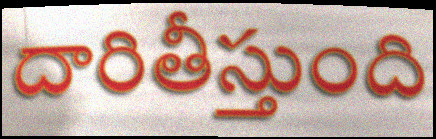
దారితీస్తుంది